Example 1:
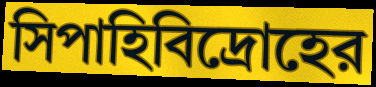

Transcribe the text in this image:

সিপাহিবিদ্রোহের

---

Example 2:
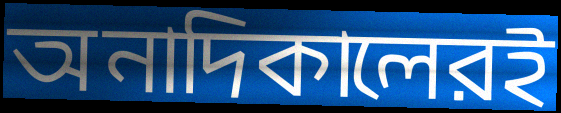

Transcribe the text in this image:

অনাদিকালেরই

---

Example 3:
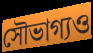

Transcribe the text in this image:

সৌভাগ্যও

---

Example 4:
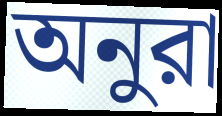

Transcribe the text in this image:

অনুরা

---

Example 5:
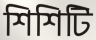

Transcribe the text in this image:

শিশিটি